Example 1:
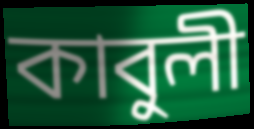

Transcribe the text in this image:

কাবুলী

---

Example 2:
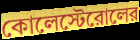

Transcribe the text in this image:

কোলেস্টেরোলের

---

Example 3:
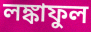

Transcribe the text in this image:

লঙ্কাফুল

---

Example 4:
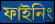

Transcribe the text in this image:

ফাইনিং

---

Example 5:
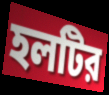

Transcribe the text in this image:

হলটির